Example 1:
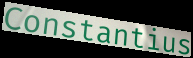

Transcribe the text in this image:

Constantius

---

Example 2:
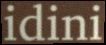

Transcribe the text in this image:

idini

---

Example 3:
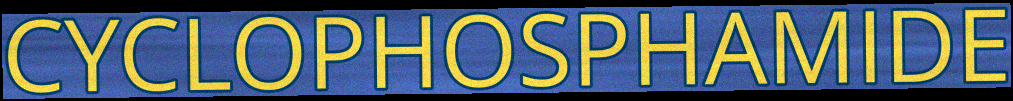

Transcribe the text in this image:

CYCLOPHOSPHAMIDE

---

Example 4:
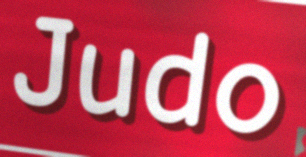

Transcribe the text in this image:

Judo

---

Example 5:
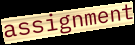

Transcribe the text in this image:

assignment